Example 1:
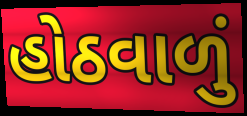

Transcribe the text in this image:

હોઠવાળું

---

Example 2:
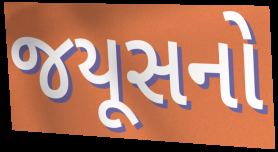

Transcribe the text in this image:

જયૂસનો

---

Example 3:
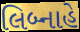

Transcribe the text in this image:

લિબ્નાહે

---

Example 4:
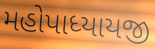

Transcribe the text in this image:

મહોપાધ્યાયજી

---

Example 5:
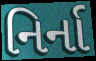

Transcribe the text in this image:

નિર્ના